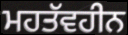
ਮਹਤੱਵਹੀਨ